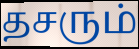
தசரும்